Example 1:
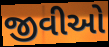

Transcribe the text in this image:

જીવીઓ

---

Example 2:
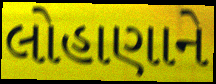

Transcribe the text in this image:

લોહાણાને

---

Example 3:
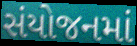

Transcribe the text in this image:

સંયોજનમાં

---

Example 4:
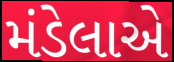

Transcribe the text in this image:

મંડેલાએ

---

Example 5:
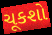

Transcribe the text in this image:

ચૂકશો